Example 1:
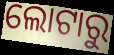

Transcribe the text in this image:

ଲୋଟାରୁ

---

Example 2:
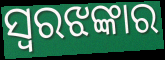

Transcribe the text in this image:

ସ୍ୱରଝଙ୍କାର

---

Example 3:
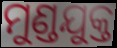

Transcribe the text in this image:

ମୁଣ୍ଡଯୁକ୍ତ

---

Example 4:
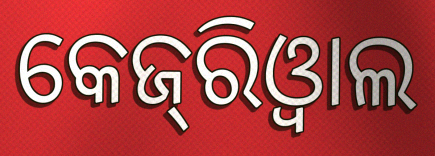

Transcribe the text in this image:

କେଜ୍‌ରିଓ୍ବାଲ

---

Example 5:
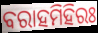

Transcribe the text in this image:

ବରାହମିହିରଃ